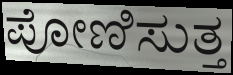
ಪೋಣಿಸುತ್ತ